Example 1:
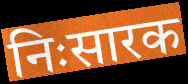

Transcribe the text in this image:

निःसारक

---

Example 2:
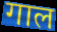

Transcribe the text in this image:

गाल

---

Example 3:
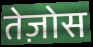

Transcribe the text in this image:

तेज़ोस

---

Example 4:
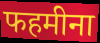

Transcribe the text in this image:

फहमीना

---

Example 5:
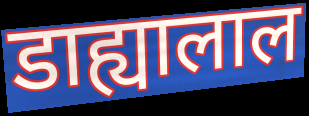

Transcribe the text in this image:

डाह्यालाल